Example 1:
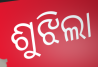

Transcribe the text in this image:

ଶୁଝିଲା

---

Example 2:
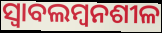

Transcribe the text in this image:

ସ୍ୱାବଲମ୍ୱନଶୀଳ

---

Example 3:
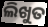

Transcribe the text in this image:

ଲିଖୁତ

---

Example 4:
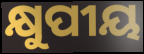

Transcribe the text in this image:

କ୍ଷୁପୀୟ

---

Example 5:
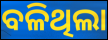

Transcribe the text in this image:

ବଳିଥିଲା